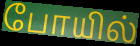
போயில்